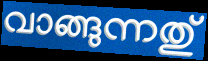
വാങ്ങുന്നതു്